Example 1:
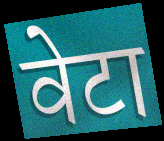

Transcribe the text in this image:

वेटा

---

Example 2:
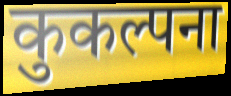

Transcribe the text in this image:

कुकल्पना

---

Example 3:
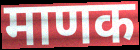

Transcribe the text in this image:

माणक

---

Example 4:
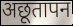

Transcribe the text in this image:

अछूतापन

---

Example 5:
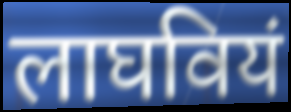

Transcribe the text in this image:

लाघवियं